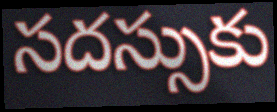
సదస్సుకు